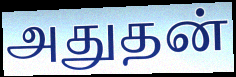
அதுதன்